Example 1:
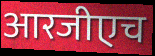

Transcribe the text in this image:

आरजीएच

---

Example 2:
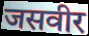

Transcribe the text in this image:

जसवीर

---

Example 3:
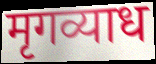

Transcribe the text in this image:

मृगव्याध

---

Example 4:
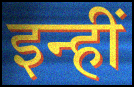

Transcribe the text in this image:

इन्हीं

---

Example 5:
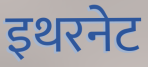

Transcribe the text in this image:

इथरनेट